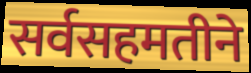
सर्वसहमतीने